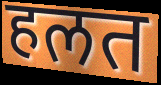
हलत